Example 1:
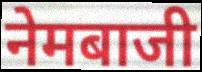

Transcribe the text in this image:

नेमबाजी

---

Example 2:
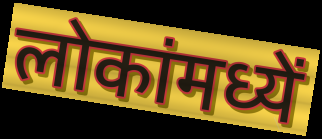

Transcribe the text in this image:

लोकांमध्यें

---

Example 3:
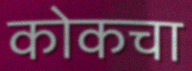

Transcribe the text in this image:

कोकचा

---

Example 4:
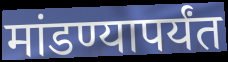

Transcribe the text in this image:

मांडण्यापर्यंत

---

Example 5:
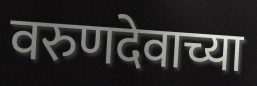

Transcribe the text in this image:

वरुणदेवाच्या